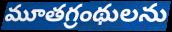
మూతగ్రంథులను